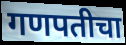
गणपतीचा